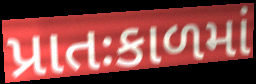
પ્રાતઃકાળમાં